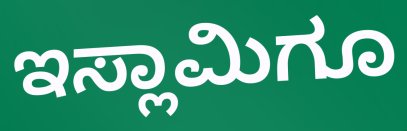
ಇಸ್ಲಾಮಿಗೂ